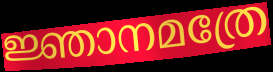
ജ്ഞാനമത്രേ